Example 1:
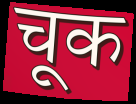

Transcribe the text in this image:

चूक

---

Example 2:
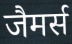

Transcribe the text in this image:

जैमर्स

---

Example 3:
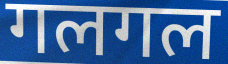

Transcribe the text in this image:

गलगल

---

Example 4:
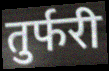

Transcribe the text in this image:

तुर्फरी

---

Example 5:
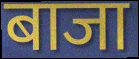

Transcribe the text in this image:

बाजा